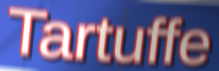
Tartuffe